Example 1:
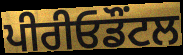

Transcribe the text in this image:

ਪੀਰੀਓਡੌਂਟਲ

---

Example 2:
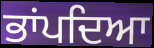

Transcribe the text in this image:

ਭਾਂਪਦਿਆ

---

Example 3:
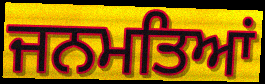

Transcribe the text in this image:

ਜਨਮਤਿਆਂ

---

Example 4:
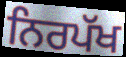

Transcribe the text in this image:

ਨਿਰਪੱਖ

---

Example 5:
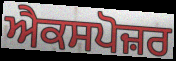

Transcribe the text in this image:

ਐਕਸਪੋਜ਼ਰ